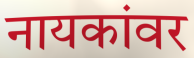
नायकांवर